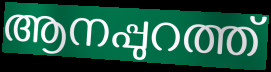
ആനപ്പുറത്ത്